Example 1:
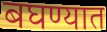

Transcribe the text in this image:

बघण्यात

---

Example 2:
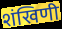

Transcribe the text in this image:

शंखिणी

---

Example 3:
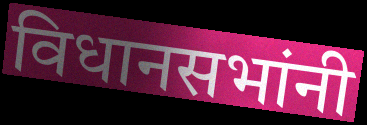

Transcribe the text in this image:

विधानसभांनी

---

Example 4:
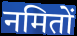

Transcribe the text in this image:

नमितों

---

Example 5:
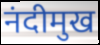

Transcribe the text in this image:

नंदीमुख